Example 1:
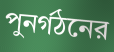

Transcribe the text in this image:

পুনর্গঠনের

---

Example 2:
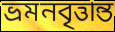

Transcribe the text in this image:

ভ্রমনবৃত্তান্ত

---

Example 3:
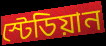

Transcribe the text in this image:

স্টেডিয়ান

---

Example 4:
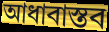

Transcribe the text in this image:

আধাবাস্তব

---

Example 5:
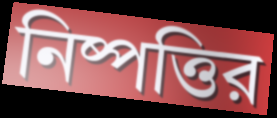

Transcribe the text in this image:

নিষ্পত্তির